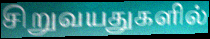
சிறுவயதுகளில்